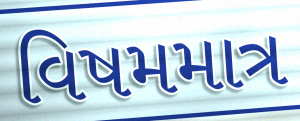
વિષમમાત્ર